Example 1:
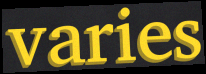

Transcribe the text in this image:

varies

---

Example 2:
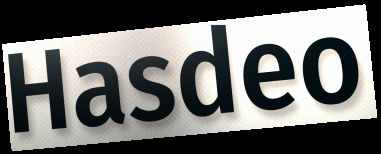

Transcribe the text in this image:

Hasdeo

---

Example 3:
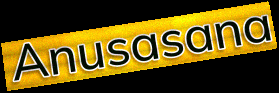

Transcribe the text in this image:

Anusasana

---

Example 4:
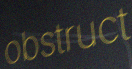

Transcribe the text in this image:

obstruct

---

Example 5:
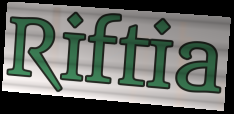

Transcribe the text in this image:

Riftia